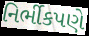
નિર્ભીકપણે